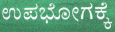
ಉಪಭೋಗಕ್ಕೆ